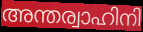
അന്തര്വാഹിനി